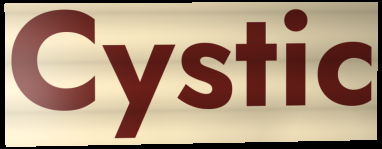
Cystic